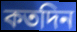
কতদিন